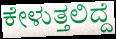
ಕೇಳುತ್ತಲಿದ್ದೆ